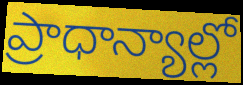
ప్రాధాన్యాల్లో